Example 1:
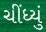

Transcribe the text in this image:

ચીંધ્યું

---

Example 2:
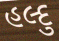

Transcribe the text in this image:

હલ્દુ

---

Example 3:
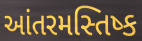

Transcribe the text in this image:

આંતરમસ્તિષ્ક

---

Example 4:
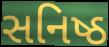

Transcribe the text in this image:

સનિષ્ઠ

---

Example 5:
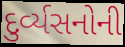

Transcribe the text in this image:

દુર્વ્યસનોની